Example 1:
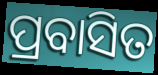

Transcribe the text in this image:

ପ୍ରବାସିତ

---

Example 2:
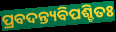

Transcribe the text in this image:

ପ୍ରବଦନ୍ତ୍ୟବିପଶ୍ଚିତଃ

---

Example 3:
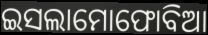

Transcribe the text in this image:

ଇସଲାମୋଫୋବିଆ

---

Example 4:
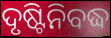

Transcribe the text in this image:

ଦୃଷ୍ଟିନିବଦ୍ଧ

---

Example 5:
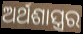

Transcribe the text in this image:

ଅର୍ଥଶାସ୍ତ୍ରର